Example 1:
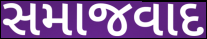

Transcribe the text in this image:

સમાજવાદ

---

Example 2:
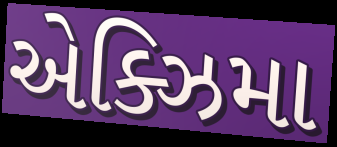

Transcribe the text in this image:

એક્ઝિમા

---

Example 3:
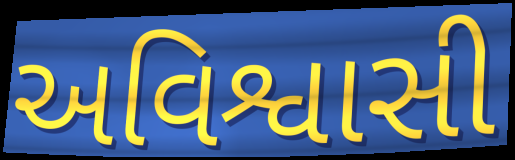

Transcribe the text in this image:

અવિશ્વાસી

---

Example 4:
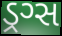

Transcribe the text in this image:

ડ્રગ્સ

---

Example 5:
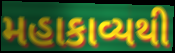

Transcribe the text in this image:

મહાકાવ્યથી